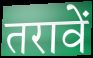
तरावें